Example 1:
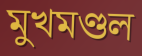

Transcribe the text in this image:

মুখমণ্ডল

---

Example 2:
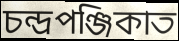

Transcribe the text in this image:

চন্দ্ৰপঞ্জিকাত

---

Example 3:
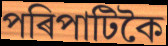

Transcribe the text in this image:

পৰিপাটিকৈ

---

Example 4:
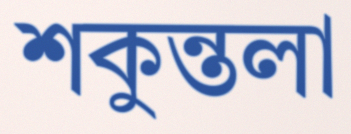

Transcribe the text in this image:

শকুন্তলা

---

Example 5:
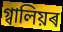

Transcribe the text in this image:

গ্বালিয়ৰ